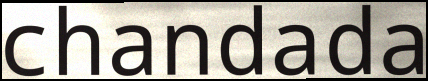
chandada